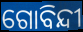
ଗୋବିନ୍ଦୀ